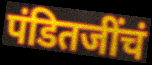
पंडितजींचं